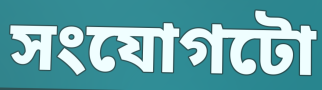
সংযোগটো